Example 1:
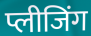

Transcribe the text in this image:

प्लीजिंग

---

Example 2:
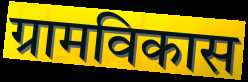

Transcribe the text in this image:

ग्रामविकास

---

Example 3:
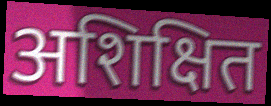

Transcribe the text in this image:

अशिक्षित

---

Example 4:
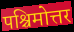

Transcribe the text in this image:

पश्चिमोत्तर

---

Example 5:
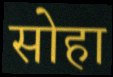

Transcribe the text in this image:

सोहा